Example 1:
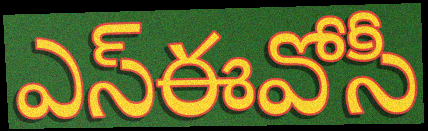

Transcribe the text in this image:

ఎస్ఈవోసీ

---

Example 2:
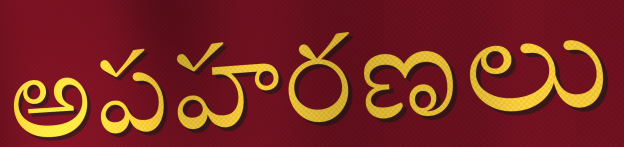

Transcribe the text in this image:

అపహరణలు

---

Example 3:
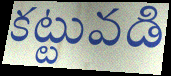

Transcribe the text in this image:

కట్టువడి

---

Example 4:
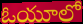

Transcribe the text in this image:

ఓయూలో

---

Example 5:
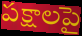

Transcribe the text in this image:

పక్షాలపై